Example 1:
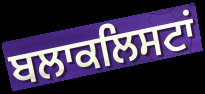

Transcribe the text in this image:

ਬਲਾਕਲਿਸਟਾਂ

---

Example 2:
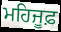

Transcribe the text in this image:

ਮਹਿਜੂਫ਼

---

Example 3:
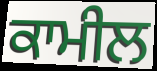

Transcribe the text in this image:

ਕਾਮੀਲ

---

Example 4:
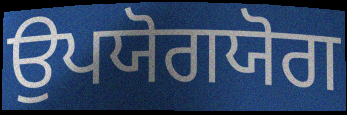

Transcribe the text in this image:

ਉਪਯੋਗਯੋਗ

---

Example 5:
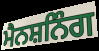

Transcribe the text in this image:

ਮੈਨਸ਼ਨਿੰਗ